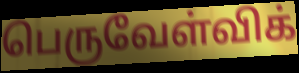
பெருவேள்விக்